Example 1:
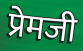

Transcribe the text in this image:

प्रेमजी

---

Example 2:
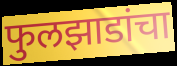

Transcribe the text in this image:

फुलझाडांचा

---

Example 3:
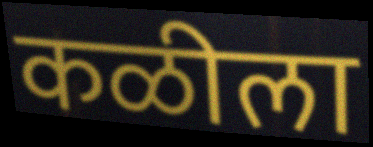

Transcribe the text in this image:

कळीला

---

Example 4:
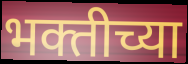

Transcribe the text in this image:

भक्‍तीच्या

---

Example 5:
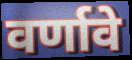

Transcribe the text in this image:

वर्णावे